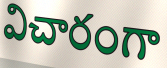
విచారంగా